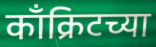
काँक्रिटच्या